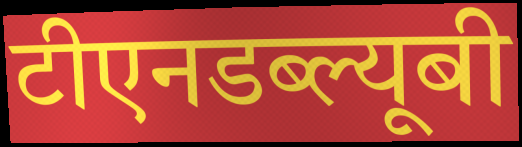
टीएनडब्ल्यूबी